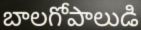
బాలగోపాలుడి